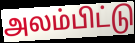
அலம்பிட்டு